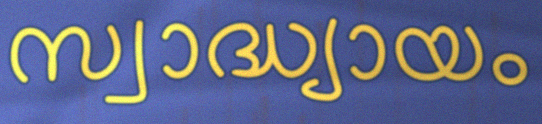
സ്വാദ്ധ്യായം